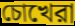
চোখেরা